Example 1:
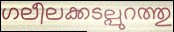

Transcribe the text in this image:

ഗലീലക്കടല്പുറത്തു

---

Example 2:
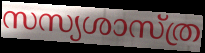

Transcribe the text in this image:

സസ്യശാസ്ത്ര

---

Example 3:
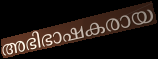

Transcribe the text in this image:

അഭിഭാഷകരായ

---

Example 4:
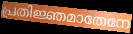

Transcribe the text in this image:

പ്രതിജ്ഞമാതേനേ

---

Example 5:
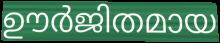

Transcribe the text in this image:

ഊർജിതമായ